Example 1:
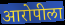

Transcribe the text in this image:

आरोपीला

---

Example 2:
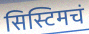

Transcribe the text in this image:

सिस्टिमचं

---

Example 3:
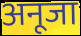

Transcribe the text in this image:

अनूजा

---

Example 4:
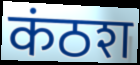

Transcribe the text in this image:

कंठश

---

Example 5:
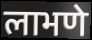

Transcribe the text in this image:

लाभणे